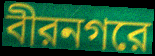
বীরনগরে